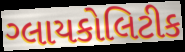
ગ્લાયકોલિટીક